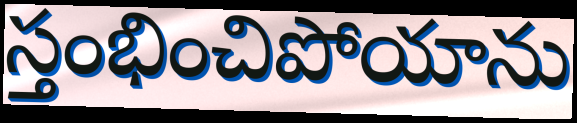
స్తంభించిపోయాను